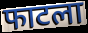
फाटला